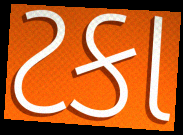
ટકા